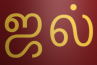
ஜல்